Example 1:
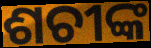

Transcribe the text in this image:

ଶଚୀଙ୍କ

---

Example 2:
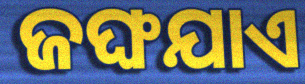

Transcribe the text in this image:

ଜଙ୍ଘଯାଏ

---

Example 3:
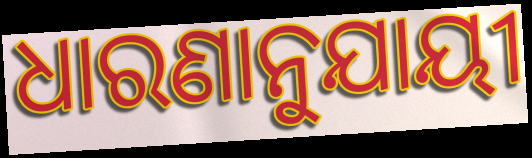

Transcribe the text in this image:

ଧାରଣାନୁଯାୟୀ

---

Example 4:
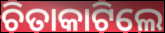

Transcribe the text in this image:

ଚିତାକାଟିଲେ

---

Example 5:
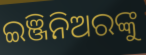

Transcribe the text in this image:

ଇଞ୍ଜିନିଅରଙ୍କୁ